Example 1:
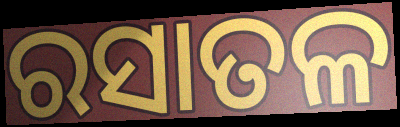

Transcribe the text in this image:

ରସାତଳ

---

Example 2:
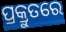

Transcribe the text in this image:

ପ୍ରକ୍ରୁତରେ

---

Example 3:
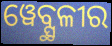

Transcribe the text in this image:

ୱେବ୍ସ୍ଥଳୀର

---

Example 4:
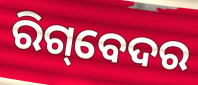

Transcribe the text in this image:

ରିଗ୍‌ବେଦର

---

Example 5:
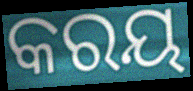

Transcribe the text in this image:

କରୟ